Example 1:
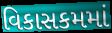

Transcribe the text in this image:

વિકાસકમમાં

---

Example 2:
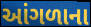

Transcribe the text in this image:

આંગળાના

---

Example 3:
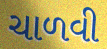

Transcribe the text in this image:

ચાળવી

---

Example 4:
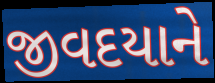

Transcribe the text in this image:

જીવદયાને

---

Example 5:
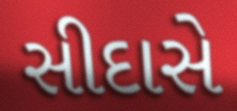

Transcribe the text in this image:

સીદાસે